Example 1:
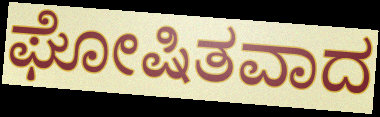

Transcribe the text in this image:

ಘೋಷಿತವಾದ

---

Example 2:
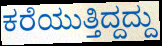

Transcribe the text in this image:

ಕರೆಯುತ್ತಿದ್ದದ್ದು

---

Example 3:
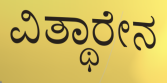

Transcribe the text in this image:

ವಿತ್ಥಾರೇನ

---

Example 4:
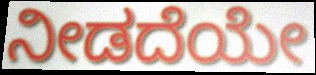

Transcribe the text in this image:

ನೀಡದೆಯೇ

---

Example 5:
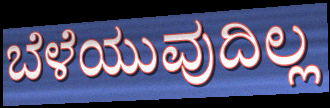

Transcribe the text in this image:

ಬೆಳೆಯುವುದಿಲ್ಲ